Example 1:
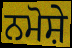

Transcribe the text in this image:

ਨਮੋਸ਼ੇ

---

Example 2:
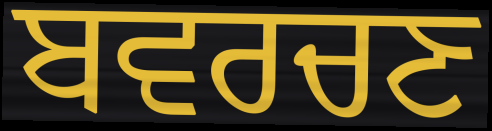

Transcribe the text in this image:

ਬਵਰਚਣ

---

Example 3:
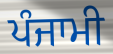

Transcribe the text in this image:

ਪੰਜਾਮੀ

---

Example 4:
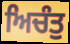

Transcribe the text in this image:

ਅਿਚੰਤੁ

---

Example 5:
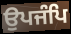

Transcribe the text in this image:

ਉਪਜੰਪਿ